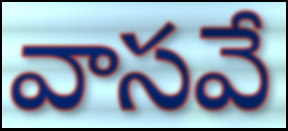
వాసవే